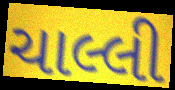
ચાલ્લી